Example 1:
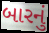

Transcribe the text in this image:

બારનું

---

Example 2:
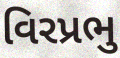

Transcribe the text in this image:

વિરપ્રભુ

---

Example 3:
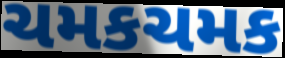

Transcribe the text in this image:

ચમકચમક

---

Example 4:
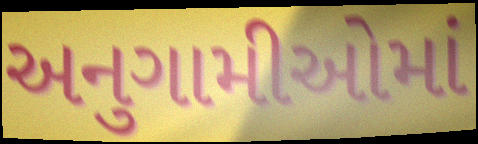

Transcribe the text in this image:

અનુગામીઓમાં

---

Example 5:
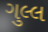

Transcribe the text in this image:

ગુલ્લ